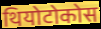
थियोटोकोस